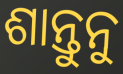
ଶାନ୍ତୁନୁ